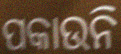
ପକାଉନି